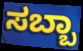
ಸಬ್ಬಾ